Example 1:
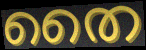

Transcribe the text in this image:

തൈ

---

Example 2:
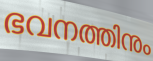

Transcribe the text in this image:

ഭവനത്തിനും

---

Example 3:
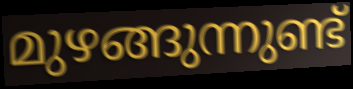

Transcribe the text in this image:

മുഴങ്ങുന്നുണ്ട്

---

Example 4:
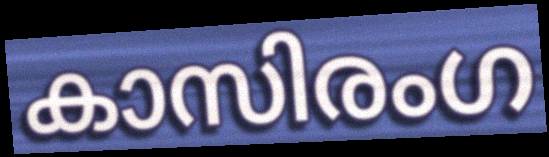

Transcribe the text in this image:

കാസിരംഗ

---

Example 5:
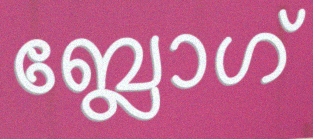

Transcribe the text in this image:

ബ്ലോഗ്